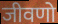
जीवणो